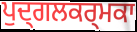
ਪੁਦ੍ਗਲਕਰ੍ਮਕਾ